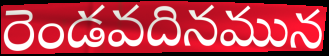
రెండవదినమున